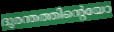
ദുരന്തത്തിന്റെയോ